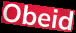
Obeid